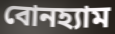
বোনহ্যাম